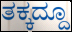
ತಕ್ಕದ್ದೂ